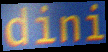
dini